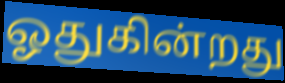
ஓதுகின்றது